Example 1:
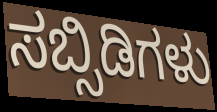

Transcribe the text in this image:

ಸಬ್ಸಿಡಿಗಳು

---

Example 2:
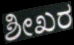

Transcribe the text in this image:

ಶೀಖರ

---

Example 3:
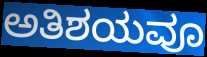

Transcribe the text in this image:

ಅತಿಶಯವೂ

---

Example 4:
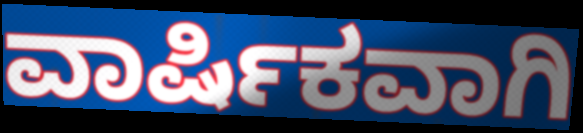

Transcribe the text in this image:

ವಾರ್ಷಿಕವಾಗಿ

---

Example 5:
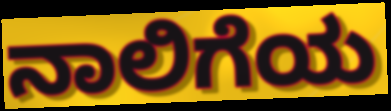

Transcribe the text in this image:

ನಾಲಿಗೆಯ